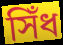
সিঁধ